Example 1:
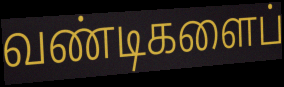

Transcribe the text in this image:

வண்டிகளைப்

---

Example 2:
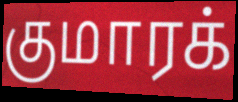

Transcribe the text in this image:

குமாரக்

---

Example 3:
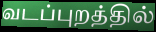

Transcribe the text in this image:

வடப்புறத்தில்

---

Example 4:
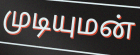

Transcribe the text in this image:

முடியுமன்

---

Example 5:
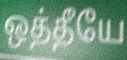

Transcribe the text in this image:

ஒத்தீயே